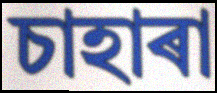
চাহাৰা